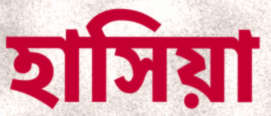
হাসিয়া